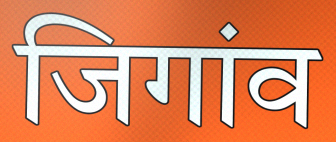
जिगांव